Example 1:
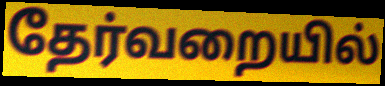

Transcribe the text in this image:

தேர்வறையில்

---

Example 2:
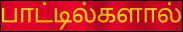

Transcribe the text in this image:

பாட்டில்களால்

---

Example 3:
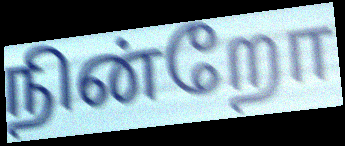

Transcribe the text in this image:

நின்றோ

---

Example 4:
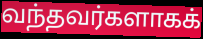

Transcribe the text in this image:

வந்தவர்களாகக்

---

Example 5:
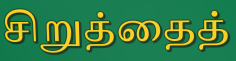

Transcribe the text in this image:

சிறுத்தைத்